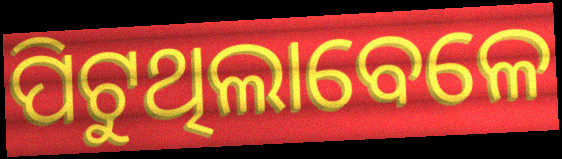
ପିଟୁଥିଲାବେଳେ